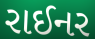
રાઈનર